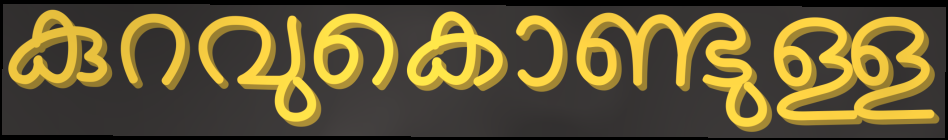
കുറവുകൊണ്ടുള്ള